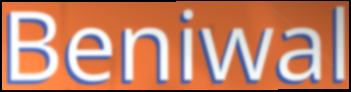
Beniwal